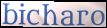
bicharo